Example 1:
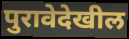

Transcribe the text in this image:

पुरावेदेखील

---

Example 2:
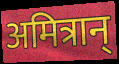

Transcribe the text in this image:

अमित्रान्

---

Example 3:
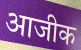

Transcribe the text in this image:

आजीक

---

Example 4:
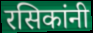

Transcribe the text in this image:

रसिकांनी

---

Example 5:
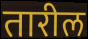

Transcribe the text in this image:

तारील